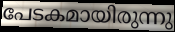
പേടകമായിരുന്നു